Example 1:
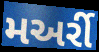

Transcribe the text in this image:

મઅર્રી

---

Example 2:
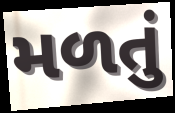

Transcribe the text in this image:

મળતું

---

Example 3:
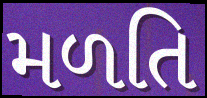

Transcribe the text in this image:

મળતિ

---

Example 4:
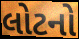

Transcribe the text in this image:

લોટનો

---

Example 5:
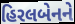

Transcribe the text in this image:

હિરલબેનને